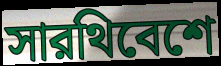
সারথিবেশে